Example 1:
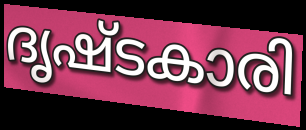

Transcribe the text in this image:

ദൃഷ്ടകാരി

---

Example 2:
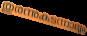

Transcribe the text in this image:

തുരന്നുകടന്നാലും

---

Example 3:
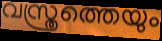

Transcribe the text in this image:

വസ്ത്രത്തെയും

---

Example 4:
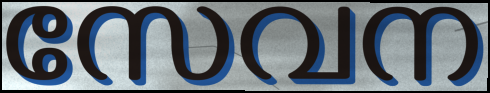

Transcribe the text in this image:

സേവന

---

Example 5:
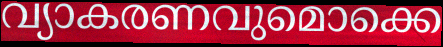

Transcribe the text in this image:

വ്യാകരണവുമൊക്കെ